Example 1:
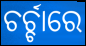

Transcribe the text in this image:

ଚର୍ଚ୍ଚାରେ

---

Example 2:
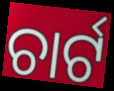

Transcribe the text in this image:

ଚାର୍ଟ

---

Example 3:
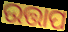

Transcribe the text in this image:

ଉତ୍ତାପ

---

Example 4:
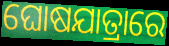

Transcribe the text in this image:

ଘୋଷଯାତ୍ରାରେ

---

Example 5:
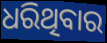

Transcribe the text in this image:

ଧରିଥିବାର